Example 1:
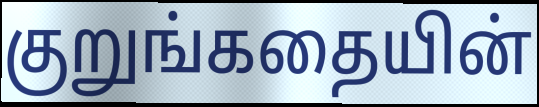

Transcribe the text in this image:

குறுங்கதையின்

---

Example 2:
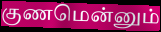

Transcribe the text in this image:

குணமென்னும்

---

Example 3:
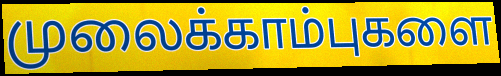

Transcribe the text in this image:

முலைக்காம்புகளை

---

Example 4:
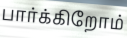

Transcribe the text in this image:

பார்க்கிறோம்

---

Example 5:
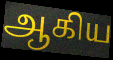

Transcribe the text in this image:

ஆகிய